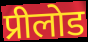
प्रीलोड